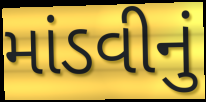
માંડવીનું